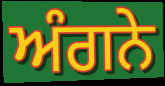
ਅੰਗਨੇ